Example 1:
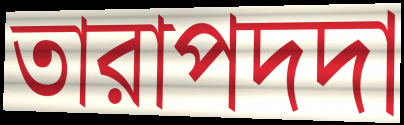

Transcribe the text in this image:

তারাপদদা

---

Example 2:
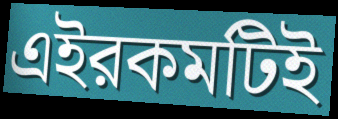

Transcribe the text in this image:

এইরকমটিই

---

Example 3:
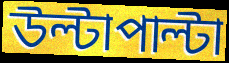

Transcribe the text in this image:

উল্টাপাল্টা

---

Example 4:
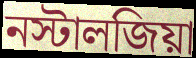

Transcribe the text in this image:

নস্টালজিয়া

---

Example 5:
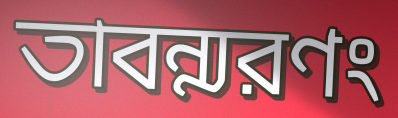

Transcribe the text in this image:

তাবন্মরণং